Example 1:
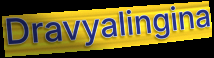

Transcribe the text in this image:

Dravyalingina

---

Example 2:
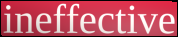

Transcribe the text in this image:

ineffective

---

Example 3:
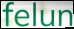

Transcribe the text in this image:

felun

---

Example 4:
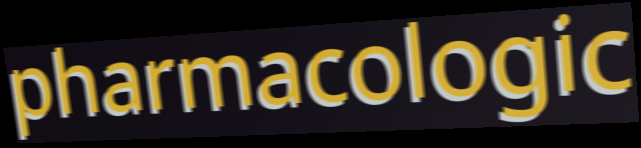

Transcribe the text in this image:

pharmacologic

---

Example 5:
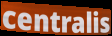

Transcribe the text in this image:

centralis